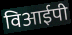
विआईपी